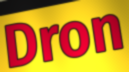
Dron